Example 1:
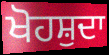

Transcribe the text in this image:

ਖੋਹਸ਼ੁਦਾ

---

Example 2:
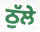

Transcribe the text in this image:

ਠੁੱਲੇ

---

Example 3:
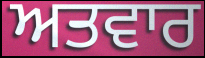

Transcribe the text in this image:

ਅਤਵਾਰ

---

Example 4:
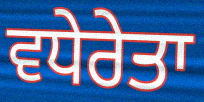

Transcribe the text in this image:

ਵਧੇਰੇਤਾ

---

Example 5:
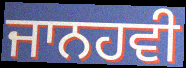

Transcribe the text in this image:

ਜਾਨਹਵੀ